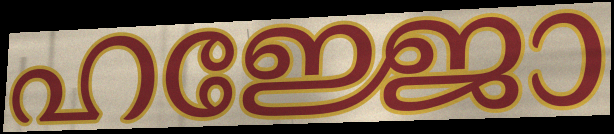
ഹജ്ജോ